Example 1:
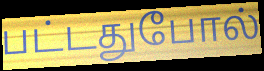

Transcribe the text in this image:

பட்டதுபோல்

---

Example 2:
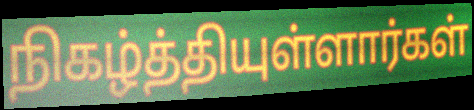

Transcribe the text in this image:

நிகழ்த்தியுள்ளார்கள்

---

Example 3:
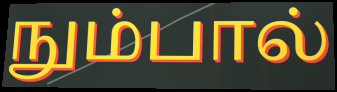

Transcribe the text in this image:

நும்பால்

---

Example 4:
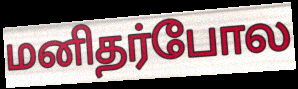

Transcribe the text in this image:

மனிதர்போல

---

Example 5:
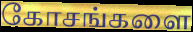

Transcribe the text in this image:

கோசங்களை